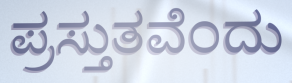
ಪ್ರಸ್ತುತವೆಂದು